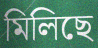
মিলিছে